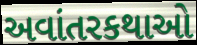
અવાંતરકથાઓ